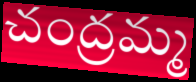
చంద్రమ్మ